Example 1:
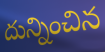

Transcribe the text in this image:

దున్నించిన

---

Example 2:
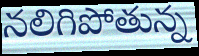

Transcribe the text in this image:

నలిగిపోతున్న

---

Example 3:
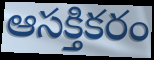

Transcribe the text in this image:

ఆసక్తికరం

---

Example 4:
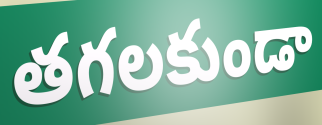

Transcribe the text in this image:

తగలకుండా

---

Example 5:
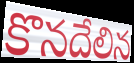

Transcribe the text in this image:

కొనదేలిన